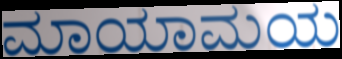
ಮಾಯಾಮಯ